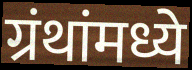
ग्रंथांमध्ये